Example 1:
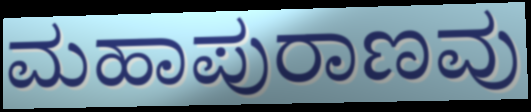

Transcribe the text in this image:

ಮಹಾಪುರಾಣವು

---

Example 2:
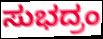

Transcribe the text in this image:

ಸುಭದ್ರಂ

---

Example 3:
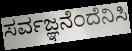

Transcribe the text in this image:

ಸರ್ವಜ್ಞನೆಂದೆನಿಸಿ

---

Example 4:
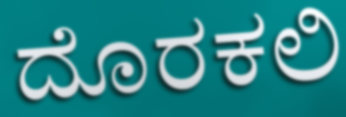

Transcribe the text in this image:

ದೊರಕಲಿ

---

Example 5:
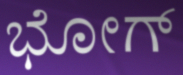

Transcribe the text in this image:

ಭೋಗ್